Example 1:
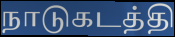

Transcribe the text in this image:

நாடுகடத்தி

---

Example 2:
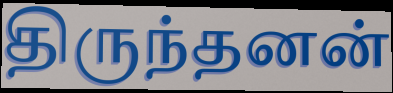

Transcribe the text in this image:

திருந்தனன்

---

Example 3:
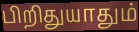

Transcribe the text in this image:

பிறிதுயாதும்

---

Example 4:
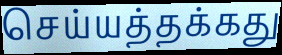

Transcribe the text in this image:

செய்யத்தக்கது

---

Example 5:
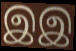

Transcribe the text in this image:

இஇ